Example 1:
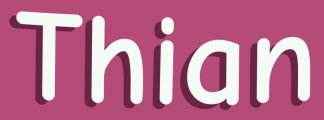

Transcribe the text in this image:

Thian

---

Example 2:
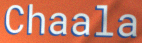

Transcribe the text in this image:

Chaala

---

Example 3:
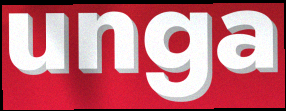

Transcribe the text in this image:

unga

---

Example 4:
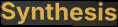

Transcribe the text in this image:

Synthesis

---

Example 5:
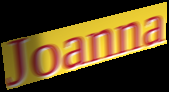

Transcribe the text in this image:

Joanna